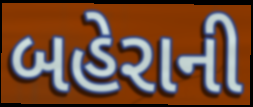
બહેરાની